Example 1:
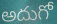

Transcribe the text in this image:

అదుగో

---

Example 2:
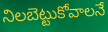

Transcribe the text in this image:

నిలబెట్టుకోవాలనే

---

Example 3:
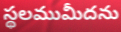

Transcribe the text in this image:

స్థలముమీదను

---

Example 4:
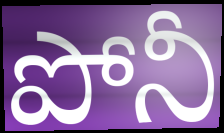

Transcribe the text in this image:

పోనీ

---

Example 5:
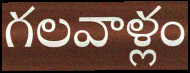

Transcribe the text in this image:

గలవాళ్లం